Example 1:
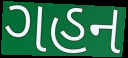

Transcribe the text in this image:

ગહન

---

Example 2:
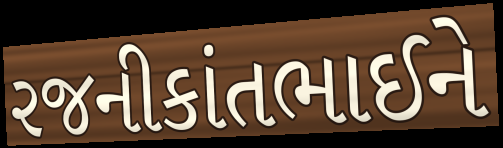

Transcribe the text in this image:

રજનીકાંતભાઈને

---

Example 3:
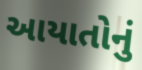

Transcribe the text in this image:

આયાતોનું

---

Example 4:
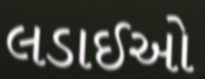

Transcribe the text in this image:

લડાઈઓ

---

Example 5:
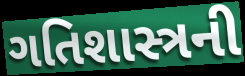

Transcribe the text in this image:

ગતિશાસ્ત્રની